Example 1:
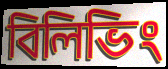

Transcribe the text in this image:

বিলিভিং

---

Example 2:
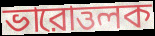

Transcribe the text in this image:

ভারোত্তলক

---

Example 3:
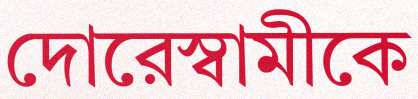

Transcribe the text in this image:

দোরেস্বামীকে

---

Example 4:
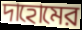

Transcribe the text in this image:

দাহোমের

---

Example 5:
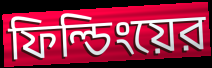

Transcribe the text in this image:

ফিল্ডিংয়ের